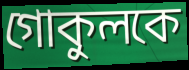
গোকুলকে